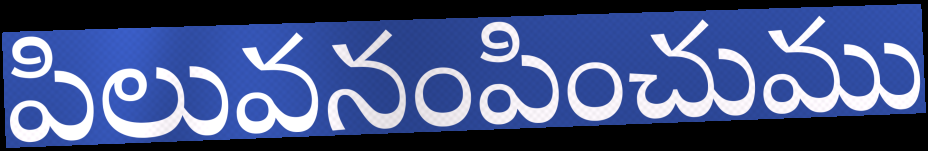
పిలువనంపించుము